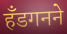
हँडगनने